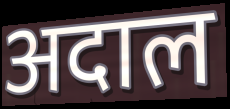
अदाल